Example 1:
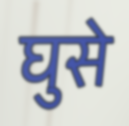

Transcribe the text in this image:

घुसे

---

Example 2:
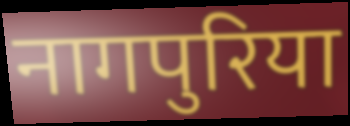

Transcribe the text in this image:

नागपुरिया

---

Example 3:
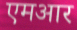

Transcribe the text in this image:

एमआर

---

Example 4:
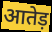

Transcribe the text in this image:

आतेड़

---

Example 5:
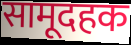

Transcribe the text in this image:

सामूदहक